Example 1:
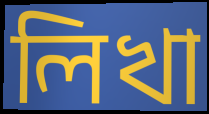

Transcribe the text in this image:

লিখা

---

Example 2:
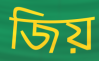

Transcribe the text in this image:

জিয়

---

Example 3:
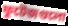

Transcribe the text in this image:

ফুটেজগুলো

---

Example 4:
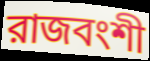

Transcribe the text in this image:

রাজবংশী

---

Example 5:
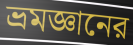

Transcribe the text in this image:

ভ্রমজ্ঞানের